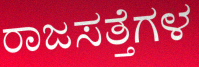
ರಾಜಸತ್ತೆಗಳ